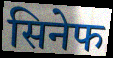
सिनेफ